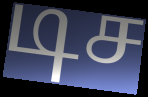
டிச